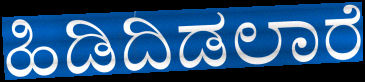
ಹಿಡಿದಿಡಲಾರೆ